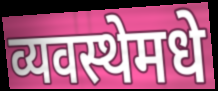
व्यवस्थेमधे